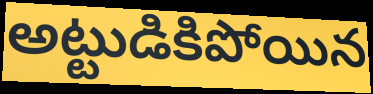
అట్టుడికిపోయిన